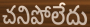
చనిపోలేదు